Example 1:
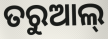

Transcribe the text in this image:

ତରୁଆଲ୍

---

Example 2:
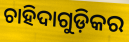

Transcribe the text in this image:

ଚାହିଦାଗୁଡ଼ିକର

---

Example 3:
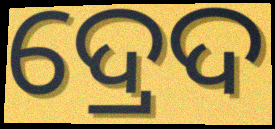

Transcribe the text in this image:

ଦ୍ରେଦ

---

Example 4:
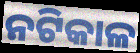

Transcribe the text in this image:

ନଟିକାଳ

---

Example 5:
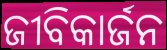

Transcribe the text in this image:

ଜୀବିକାର୍ଜନ